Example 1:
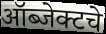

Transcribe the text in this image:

ऑब्जेक्टचे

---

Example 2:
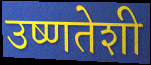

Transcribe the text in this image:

उष्णतेशी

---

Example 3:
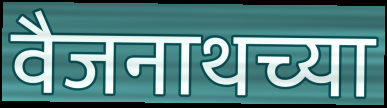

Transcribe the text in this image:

वैजनाथच्या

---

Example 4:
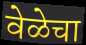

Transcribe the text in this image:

वेळेचा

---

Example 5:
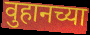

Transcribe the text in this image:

वुहानच्या